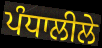
ਪੰਧਾਲੀਲੇ